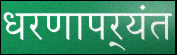
धरणापर्यंत